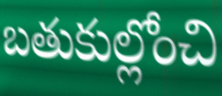
బతుకుల్లోంచి